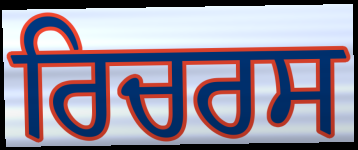
ਰਿਚਰਸ